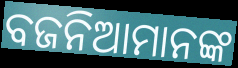
ବଜନିଆମାନଙ୍କ